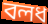
বলধ